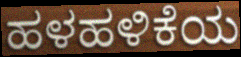
ಹಳಹಳಿಕೆಯ